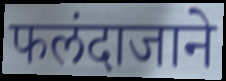
फलंदाजाने